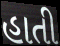
હાતી